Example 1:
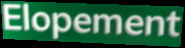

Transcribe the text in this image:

Elopement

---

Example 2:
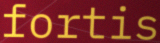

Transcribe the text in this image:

fortis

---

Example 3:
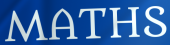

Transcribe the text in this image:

MATHS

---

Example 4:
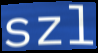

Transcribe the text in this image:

szl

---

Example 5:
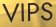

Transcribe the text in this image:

VIPS